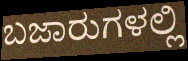
ಬಜಾರುಗಳಲ್ಲಿ